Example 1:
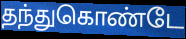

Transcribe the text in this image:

தந்துகொண்டே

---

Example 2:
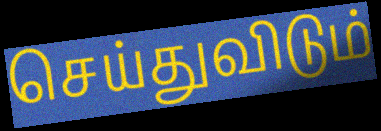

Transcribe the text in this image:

செய்துவிடும்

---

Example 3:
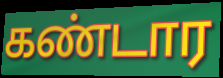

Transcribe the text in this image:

கண்டார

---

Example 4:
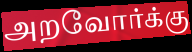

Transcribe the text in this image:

அறவோர்க்கு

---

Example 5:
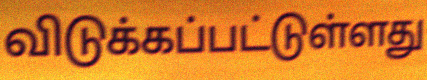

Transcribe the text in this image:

விடுக்கப்பட்டுள்ளது